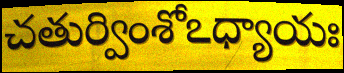
చతుర్వింశోఽధ్యాయః